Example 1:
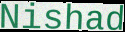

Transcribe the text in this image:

Nishad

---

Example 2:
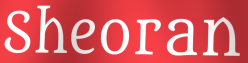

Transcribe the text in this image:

Sheoran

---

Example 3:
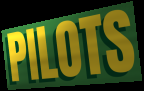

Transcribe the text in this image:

PILOTS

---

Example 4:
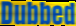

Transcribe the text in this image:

Dubbed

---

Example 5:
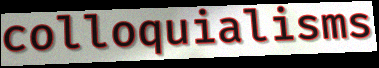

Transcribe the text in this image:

colloquialisms